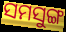
ସମସୁଙ୍ଗ